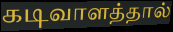
கடிவாளத்தால்